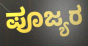
ಪೂಜ್ಯರ